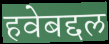
हवेबद्दल